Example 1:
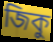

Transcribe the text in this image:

জিকু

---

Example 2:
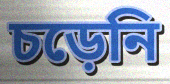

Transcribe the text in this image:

চড়েনি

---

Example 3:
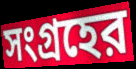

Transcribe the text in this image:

সংগ্রহের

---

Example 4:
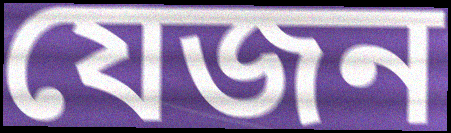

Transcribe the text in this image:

যেজন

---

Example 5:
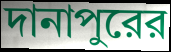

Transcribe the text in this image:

দানাপুরের